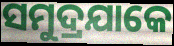
ସମୁଦ୍ରଯାକେ